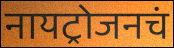
नायट्रोजनचं